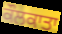
ਕੌਲਕਾਤਾ